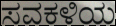
ಸವಕಳಿಯ